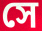
সে